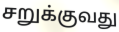
சறுக்குவது